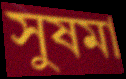
সুষমা